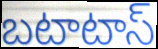
బటాటాస్